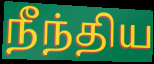
நீந்திய